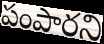
పంపారని